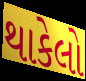
થાકેલો